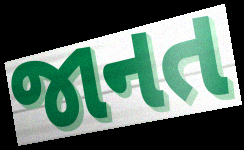
જાનત